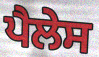
ਪੈਲੇਸ